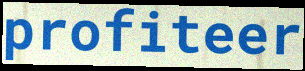
profiteer